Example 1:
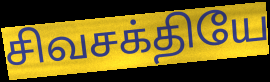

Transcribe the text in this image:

சிவசக்தியே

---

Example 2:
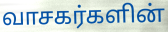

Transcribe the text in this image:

வாசகர்களின்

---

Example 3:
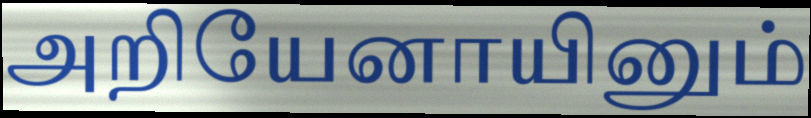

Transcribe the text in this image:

அறியேனாயினும்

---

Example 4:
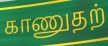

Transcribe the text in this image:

காணுதற்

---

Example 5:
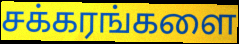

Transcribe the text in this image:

சக்கரங்களை